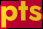
pts